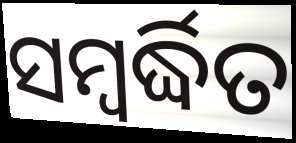
ସମ୍ବର୍ଦ୍ଧିତ